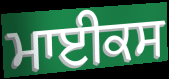
ਮਾਈਕਸ